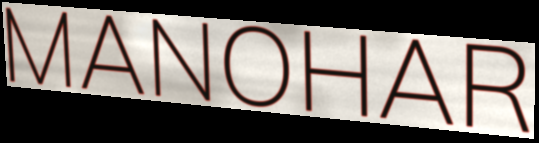
MANOHAR